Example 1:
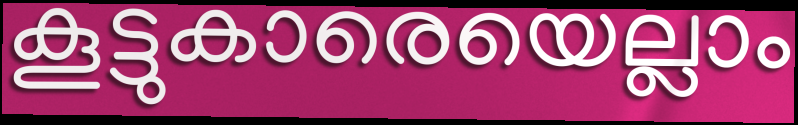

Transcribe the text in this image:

കൂട്ടുകാരെയെല്ലാം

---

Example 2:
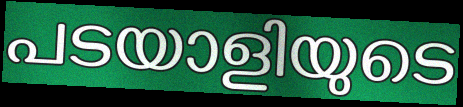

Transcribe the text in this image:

പടയാളിയുടെ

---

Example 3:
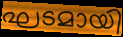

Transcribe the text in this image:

ഘടമായി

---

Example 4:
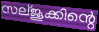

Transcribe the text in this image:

സല്ജൂക്കിന്റെ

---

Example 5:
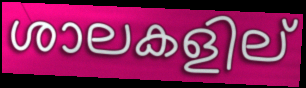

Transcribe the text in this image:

ശാലകളില്